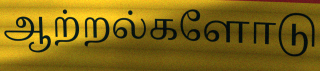
ஆற்றல்களோடு